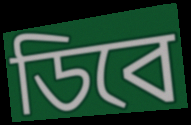
ডিবে